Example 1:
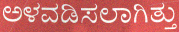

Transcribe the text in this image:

ಅಳವಡಿಸಲಾಗಿತ್ತು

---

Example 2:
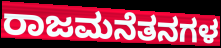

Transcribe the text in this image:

ರಾಜಮನೆತನಗಳ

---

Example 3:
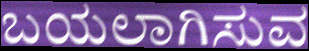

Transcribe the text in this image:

ಬಯಲಾಗಿಸುವ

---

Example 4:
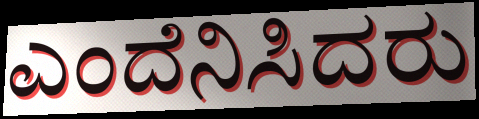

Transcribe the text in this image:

ಎಂದೆನಿಸಿದರು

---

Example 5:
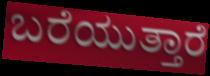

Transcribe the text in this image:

ಬರೆಯುತ್ತಾರೆ